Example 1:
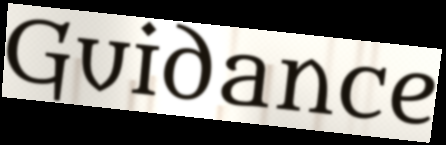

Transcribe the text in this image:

Guidance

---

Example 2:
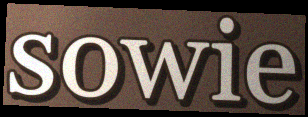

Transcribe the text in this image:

sowie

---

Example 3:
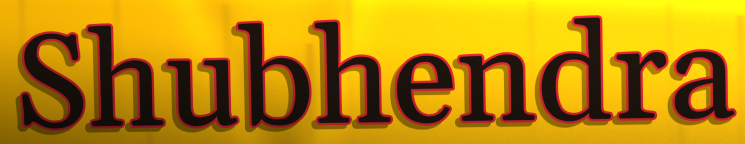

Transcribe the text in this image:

Shubhendra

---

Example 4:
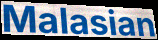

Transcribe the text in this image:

Malasian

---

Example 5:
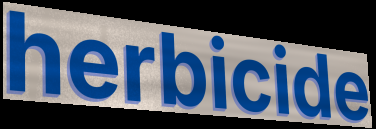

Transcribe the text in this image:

herbicide